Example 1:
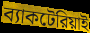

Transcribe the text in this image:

ব্যাকটেরিয়াই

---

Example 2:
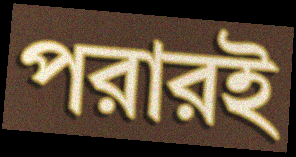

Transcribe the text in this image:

পরারই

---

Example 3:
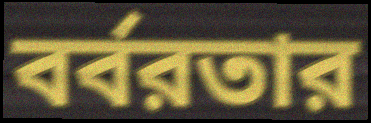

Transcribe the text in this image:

বর্বরতার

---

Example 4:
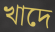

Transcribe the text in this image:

খাদে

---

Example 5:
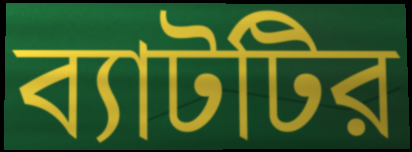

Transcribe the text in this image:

ব্যাটটির